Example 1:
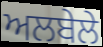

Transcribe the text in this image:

ਅਲਬੇਲੇ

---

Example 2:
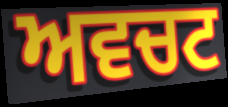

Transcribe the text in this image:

ਅਵਚਟ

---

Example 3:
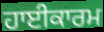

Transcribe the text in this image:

ਹਾਈਕਾਰਮ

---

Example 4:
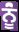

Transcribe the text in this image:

ਨੂਂੰ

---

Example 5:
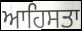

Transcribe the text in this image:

ਆਹਿਸਤਾ